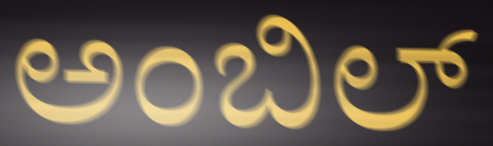
ಅಂಬಿಲ್